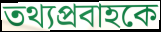
তথ্যপ্রবাহকে